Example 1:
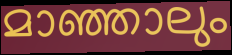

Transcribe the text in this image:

മാഞ്ഞാലും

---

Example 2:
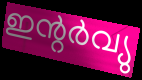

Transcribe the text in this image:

ഇന്റർവ്യു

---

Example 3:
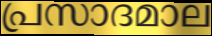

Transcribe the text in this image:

പ്രസാദമാല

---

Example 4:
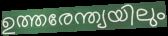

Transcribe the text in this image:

ഉത്തരേന്ത്യയിലും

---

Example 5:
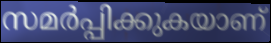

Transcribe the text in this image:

സമർപ്പിക്കുകയാണ്